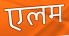
एलम